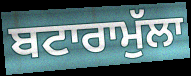
ਬਟਾਰਾਮੁੱਲਾ